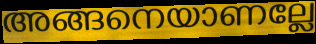
അങ്ങനെയാണല്ലേ